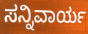
ಸನ್ನಿವಾರ್ಯ